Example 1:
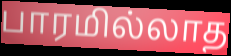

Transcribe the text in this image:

பாரமில்லாத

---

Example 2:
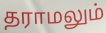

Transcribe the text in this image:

தராமலும்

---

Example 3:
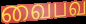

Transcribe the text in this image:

வைபவ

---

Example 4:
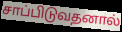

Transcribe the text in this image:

சாப்பிடுவதனால்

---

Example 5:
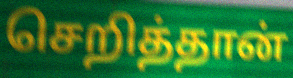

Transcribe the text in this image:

செறித்தான்